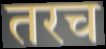
तरच